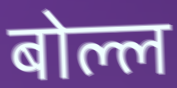
बोल्ल